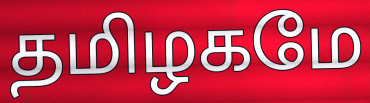
தமிழகமே